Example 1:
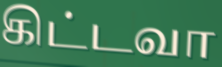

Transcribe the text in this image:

கிட்டவா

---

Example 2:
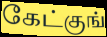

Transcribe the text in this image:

கேட்குங்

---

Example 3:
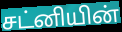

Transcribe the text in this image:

சட்னியின்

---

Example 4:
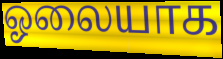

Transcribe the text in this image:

ஓலையாக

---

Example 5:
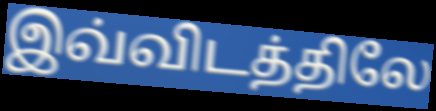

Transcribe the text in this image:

இவ்விடத்திலே